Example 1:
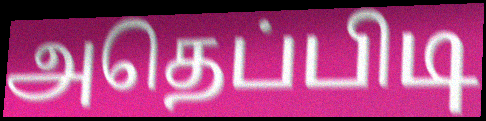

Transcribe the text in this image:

அதெப்பிடி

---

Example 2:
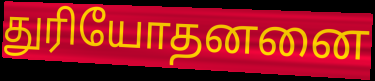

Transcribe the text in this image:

துரியோதனனை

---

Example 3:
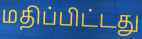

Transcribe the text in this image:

மதிப்பிட்டது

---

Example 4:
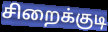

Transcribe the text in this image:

சிறைக்குடி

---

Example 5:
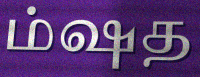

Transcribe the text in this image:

ம்ஷத